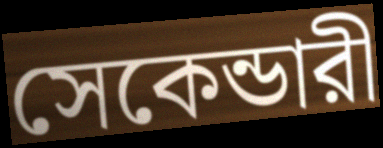
সেকেন্ডারী